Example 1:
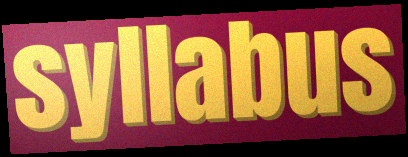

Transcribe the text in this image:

syllabus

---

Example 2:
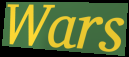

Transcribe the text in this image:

Wars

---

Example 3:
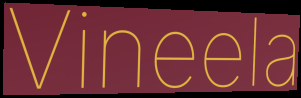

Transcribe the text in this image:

Vineela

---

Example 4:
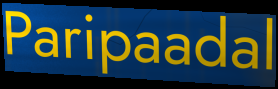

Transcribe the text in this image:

Paripaadal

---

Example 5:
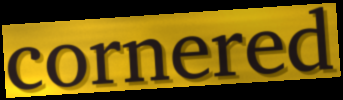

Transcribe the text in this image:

cornered